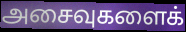
அசைவுகளைக்